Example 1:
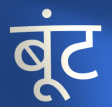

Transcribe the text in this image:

बूंट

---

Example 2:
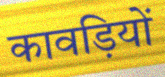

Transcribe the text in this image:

कावड़ियों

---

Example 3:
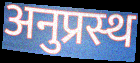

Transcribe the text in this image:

अनुप्रस्थ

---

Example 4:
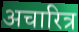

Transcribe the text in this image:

अचारित्र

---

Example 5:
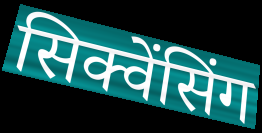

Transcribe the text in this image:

सिक्वेंसिंग